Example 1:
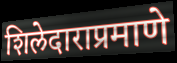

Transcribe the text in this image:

शिलेदाराप्रमाणे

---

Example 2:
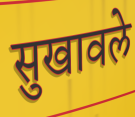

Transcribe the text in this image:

सुखावले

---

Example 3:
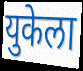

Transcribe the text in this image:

युकेला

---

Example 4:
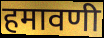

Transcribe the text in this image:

हमावणी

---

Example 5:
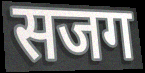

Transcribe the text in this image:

सजग